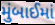
મુંબાઈમાં